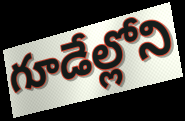
గూడేల్లోని